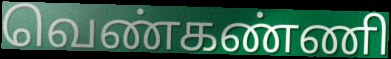
வெண்கண்ணி